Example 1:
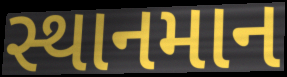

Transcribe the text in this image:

સ્થાનમાન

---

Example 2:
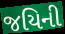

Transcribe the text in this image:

જયિની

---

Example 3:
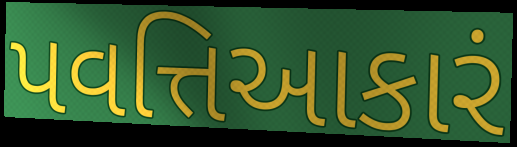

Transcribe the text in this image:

પવત્તિઆકારં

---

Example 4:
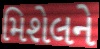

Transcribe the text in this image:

મિશેલને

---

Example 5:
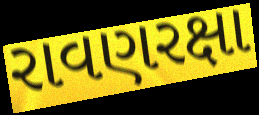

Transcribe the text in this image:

રાવણરક્ષા